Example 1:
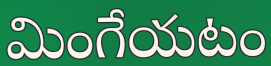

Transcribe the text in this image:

మింగేయటం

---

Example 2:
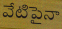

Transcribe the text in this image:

వేటిపైనా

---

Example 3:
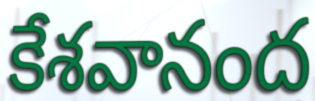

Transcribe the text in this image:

కేశవానంద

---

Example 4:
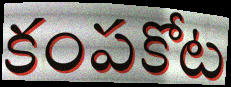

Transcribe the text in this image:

కంపకోట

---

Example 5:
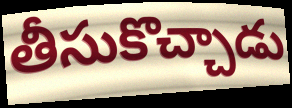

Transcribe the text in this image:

తీసుకొచ్చాడు